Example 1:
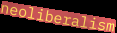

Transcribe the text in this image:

neoliberalism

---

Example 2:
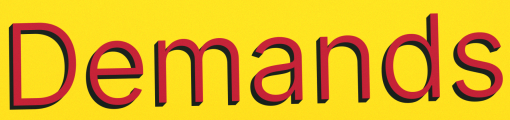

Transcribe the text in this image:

Demands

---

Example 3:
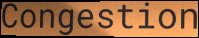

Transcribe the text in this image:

Congestion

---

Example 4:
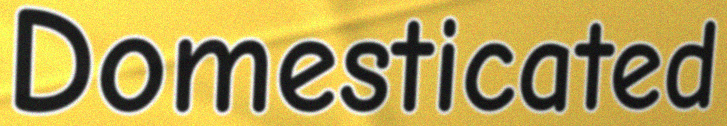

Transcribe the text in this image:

Domesticated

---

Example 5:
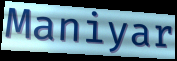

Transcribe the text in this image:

Maniyar